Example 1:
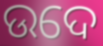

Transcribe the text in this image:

ଉଦେ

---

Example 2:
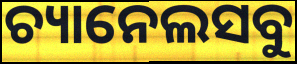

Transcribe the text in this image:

ଚ୍ୟାନେଲସବୁ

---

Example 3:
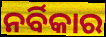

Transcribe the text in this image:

ନର୍ବିକାର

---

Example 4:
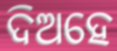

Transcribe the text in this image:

ଦିଅହେ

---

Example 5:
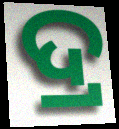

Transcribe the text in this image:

ଦ୍ର